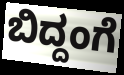
ಬಿದ್ದಂಗೆ